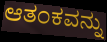
ಆತಂಕವನ್ನು